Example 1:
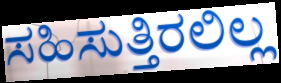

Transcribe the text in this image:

ಸಹಿಸುತ್ತಿರಲಿಲ್ಲ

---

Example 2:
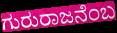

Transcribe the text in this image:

ಗುರುರಾಜನೆಂಬ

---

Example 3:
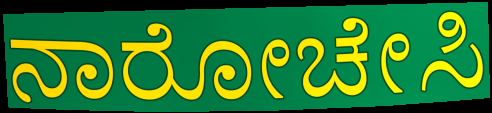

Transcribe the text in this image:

ನಾರೋಚೇಸಿ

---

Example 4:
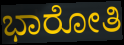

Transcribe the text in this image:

ಭಾರೋತಿ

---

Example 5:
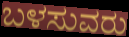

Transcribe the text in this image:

ಬಳಸುವರು